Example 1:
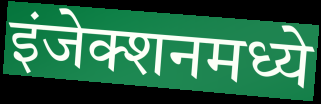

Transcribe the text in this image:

इंजेक्शनमध्ये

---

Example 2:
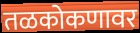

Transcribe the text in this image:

तळकोकणावर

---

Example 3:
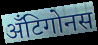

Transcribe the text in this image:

अँटिगोनस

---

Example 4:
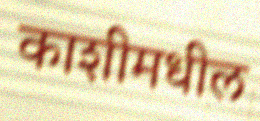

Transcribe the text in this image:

काशीमधील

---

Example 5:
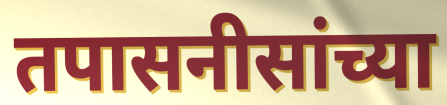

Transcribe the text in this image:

तपासनीसांच्या